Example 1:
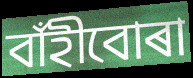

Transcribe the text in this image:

বাঁহীবোৰা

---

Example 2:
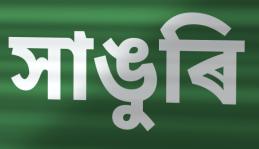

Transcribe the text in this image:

সাঙুৰি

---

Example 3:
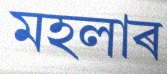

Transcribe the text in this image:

মহলাৰ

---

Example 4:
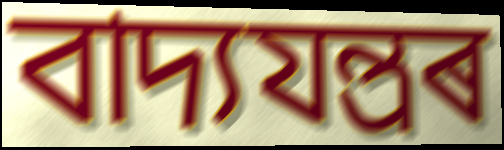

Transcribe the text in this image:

বাদ্যযন্ত্ৰৰ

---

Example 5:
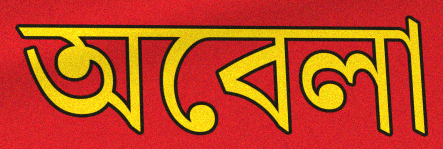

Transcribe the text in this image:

অবেলা